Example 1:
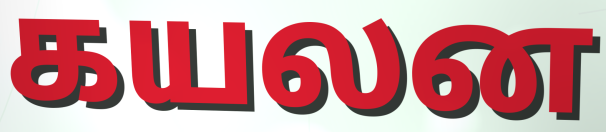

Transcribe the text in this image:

கயலன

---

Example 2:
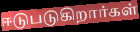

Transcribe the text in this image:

ஈடுபடுகிறார்கள்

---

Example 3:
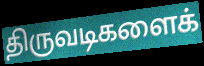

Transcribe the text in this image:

திருவடிகளைக்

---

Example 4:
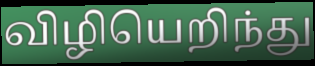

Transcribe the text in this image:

விழியெறிந்து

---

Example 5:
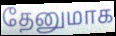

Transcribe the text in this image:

தேனுமாக